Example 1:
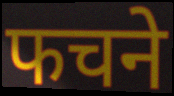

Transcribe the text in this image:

फचने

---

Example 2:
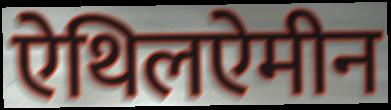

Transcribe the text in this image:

ऐथिलऐमीन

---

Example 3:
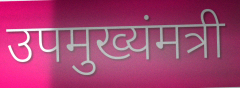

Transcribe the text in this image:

उपमुख्यंमत्री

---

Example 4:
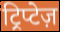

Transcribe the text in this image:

ट्रिप्टेज़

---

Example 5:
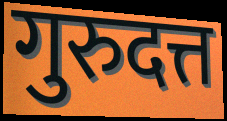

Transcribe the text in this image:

गुरुदत्त